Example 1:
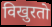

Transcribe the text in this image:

विखुरतो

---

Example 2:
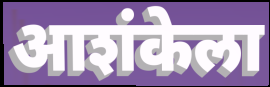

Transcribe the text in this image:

आशंकेला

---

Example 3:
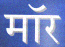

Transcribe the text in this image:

मॉर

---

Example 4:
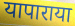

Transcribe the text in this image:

यापाराया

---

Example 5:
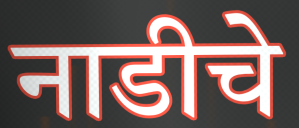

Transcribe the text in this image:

नाडीचे